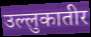
उल्लुकातीर